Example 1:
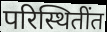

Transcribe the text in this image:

परिस्थितींत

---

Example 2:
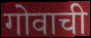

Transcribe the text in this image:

गोवाची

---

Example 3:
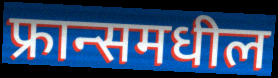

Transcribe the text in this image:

फ्रान्समधील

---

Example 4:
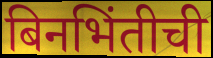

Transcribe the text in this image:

बिनभिंतीची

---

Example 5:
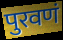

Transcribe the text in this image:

पुरवणं